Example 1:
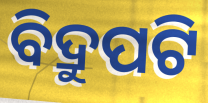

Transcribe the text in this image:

ବିଦ୍ରୁପଟି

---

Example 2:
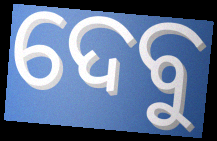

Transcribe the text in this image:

ଦେବୁ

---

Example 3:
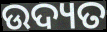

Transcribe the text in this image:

ଉଦ୍ୟତ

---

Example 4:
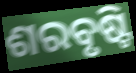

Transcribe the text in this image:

ଶରବୃଷ୍ଟି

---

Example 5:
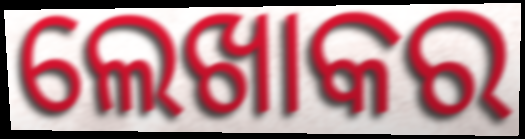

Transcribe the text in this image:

ଲେଖାକର